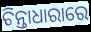
ଚିନ୍ତାଧାରାରେ